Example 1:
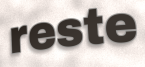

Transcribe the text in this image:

reste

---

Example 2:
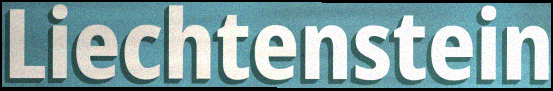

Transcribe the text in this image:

Liechtenstein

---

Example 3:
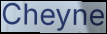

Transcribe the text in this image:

Cheyne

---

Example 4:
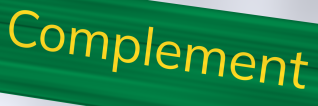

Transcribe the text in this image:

Complement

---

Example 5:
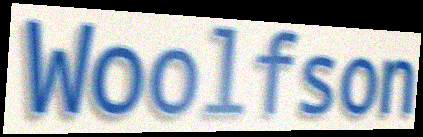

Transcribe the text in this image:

Woolfson